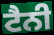
ਟੈਨੀ